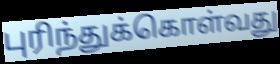
புரிந்துக்கொள்வது